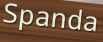
Spanda